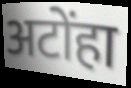
अटोंहा